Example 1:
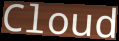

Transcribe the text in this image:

Cloud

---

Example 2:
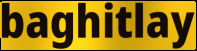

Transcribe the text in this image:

baghitlay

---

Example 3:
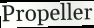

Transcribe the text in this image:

Propeller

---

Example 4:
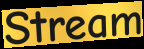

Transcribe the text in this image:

Stream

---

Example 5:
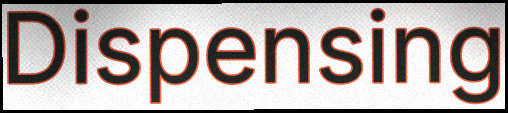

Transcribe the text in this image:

Dispensing